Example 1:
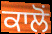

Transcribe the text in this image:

ਕਾਲੋਂ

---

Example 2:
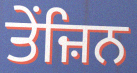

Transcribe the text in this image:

ਤੇਂਜ਼ਿਨ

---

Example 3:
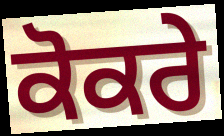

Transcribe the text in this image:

ਕੋਕਰੇ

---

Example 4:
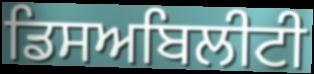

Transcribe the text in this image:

ਡਿਸਅਬਿਲੀਟੀ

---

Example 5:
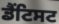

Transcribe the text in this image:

ਡੈਂਟਿਸਟ